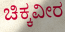
ಚಿಕ್ಕವೀರ